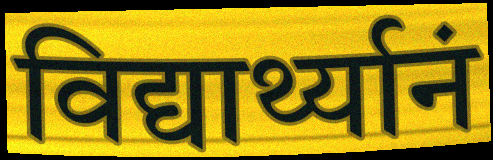
विद्यार्थ्यानं